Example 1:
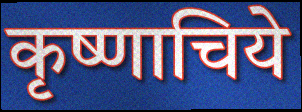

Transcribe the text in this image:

कृष्णाचिये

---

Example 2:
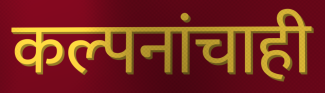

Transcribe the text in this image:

कल्पनांचाही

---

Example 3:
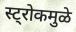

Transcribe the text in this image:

स्ट्रोकमुळे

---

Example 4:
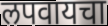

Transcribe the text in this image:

लपवायचा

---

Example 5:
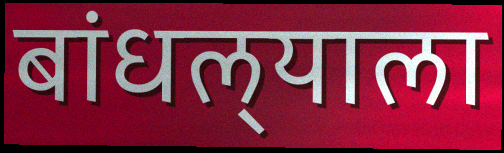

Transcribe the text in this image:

बांधल्याला